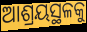
ଆଶ୍ରୟସ୍ଥଳକୁ